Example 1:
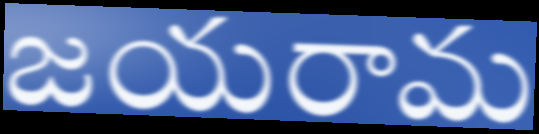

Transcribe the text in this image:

జయరామ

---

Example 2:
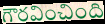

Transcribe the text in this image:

గౌరవించింది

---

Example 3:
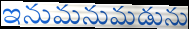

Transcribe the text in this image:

ఇనుమనుమడును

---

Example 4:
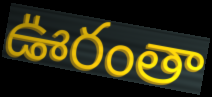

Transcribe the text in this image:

ఊరంతా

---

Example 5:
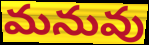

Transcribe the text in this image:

మనువు